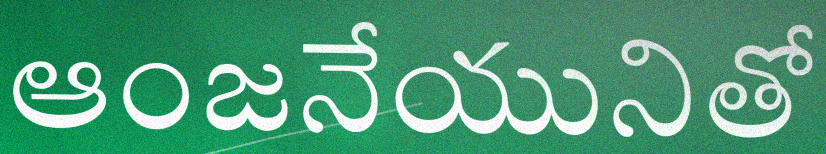
ఆంజనేయునితో